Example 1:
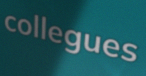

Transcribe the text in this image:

collegues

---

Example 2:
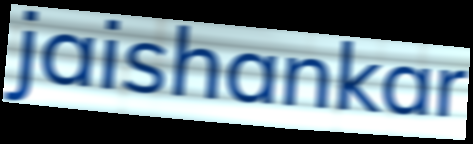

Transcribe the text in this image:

jaishankar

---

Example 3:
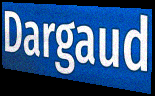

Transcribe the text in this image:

Dargaud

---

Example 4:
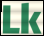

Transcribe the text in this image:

Lk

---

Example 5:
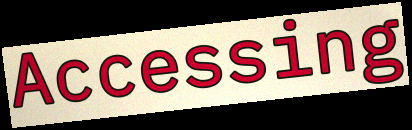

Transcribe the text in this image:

Accessing